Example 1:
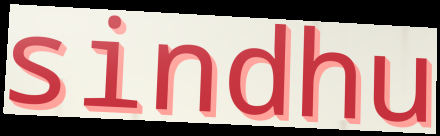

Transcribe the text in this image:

sindhu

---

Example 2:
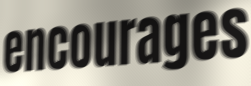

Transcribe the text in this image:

encourages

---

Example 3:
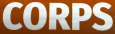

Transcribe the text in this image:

CORPS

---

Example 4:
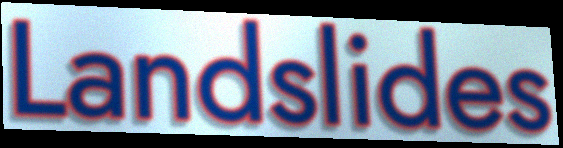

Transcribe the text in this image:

Landslides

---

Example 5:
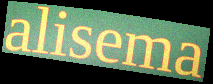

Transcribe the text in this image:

alisema